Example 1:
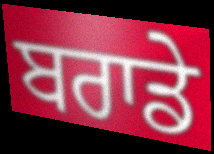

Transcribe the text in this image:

ਬਰਾਡੇ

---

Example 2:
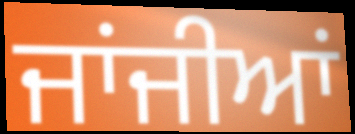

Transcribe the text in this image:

ਜਾਂਜੀਆਂ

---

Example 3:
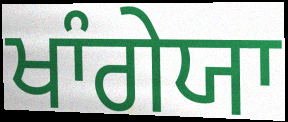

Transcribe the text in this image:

ਖਾੰਗੇਯਾ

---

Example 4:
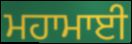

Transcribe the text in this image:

ਮਹਾਮਾਈ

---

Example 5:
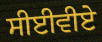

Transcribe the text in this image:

ਸੀਈਵੀਏ